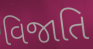
વિજાતિ